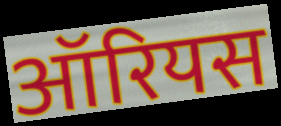
ऑरियस